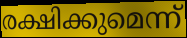
രക്ഷിക്കുമെന്ന്